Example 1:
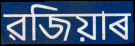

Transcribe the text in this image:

ৱজিয়াৰ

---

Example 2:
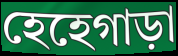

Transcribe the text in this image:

হেহেগাড়া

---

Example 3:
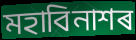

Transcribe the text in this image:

মহাবিনাশৰ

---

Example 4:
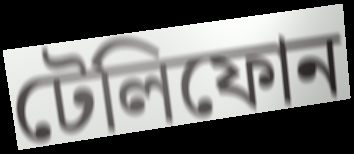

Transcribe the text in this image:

টেলিফোন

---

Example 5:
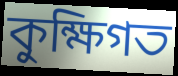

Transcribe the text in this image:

কুক্ষিগত